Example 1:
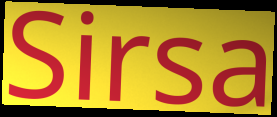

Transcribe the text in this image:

Sirsa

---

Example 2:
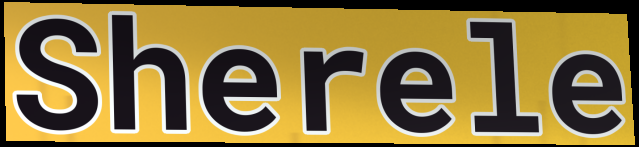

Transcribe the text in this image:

Sherele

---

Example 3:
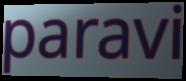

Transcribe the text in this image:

paravi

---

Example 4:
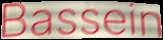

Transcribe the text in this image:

Bassein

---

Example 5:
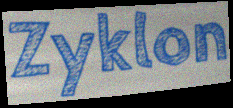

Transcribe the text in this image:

Zyklon